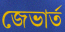
জেভার্ত